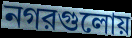
নগরগুলোয়